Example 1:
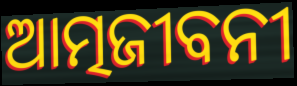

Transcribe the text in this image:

ଆତ୍ମଜୀବନୀ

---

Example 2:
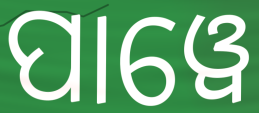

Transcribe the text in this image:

ପାୱେ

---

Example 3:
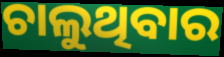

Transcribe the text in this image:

ଚାଲୁଥିବାର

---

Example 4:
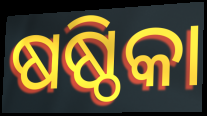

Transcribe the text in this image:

ଷଷ୍ଠିକା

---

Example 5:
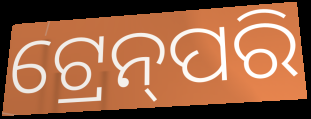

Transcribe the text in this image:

ଟ୍ରେନ୍‌ପରି